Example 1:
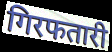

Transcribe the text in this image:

गिरफतारी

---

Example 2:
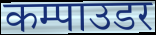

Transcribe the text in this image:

कम्पाउडर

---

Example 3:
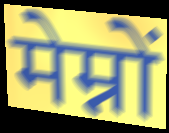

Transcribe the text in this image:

मेम्नों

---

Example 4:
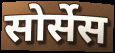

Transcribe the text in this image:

सोर्सेस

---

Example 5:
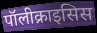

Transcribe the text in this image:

पॉलीक्राइसिस